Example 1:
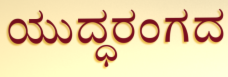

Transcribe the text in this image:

ಯುದ್ಧರಂಗದ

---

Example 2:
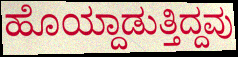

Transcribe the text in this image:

ಹೊಯ್ದಾಡುತ್ತಿದ್ದವು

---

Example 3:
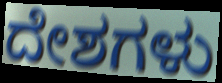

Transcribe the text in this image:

ದೇಶಗಳು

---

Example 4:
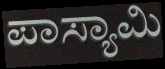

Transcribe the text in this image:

ಪಾಸ್ಯಾಮಿ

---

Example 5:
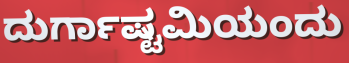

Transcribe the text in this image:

ದುರ್ಗಾಷ್ಟಮಿಯಂದು